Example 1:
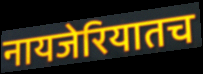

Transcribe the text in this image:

नायजेरियातच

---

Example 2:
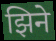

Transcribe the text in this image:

झिने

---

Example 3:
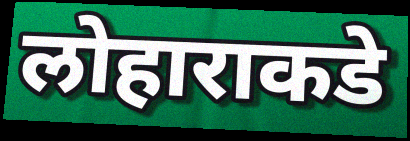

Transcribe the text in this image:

लोहाराकडे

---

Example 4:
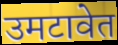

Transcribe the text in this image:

उमटावेत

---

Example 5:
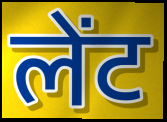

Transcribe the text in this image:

लेंट